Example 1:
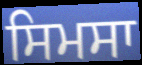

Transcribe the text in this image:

ਸਿਮਸਾ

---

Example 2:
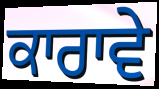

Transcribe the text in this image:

ਕਾਰਾਵੇ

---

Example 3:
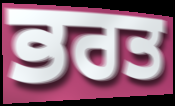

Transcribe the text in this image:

ਭਰਤ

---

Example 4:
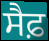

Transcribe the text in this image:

ਸੈਫ਼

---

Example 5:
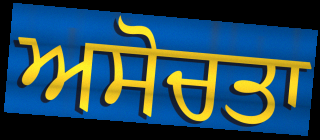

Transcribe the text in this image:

ਅਸੋਚਤਾ